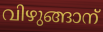
വിഴുങ്ങാന്